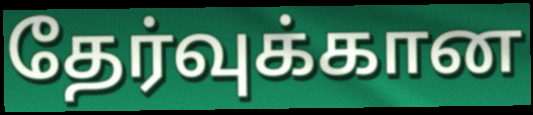
தேர்வுக்கான